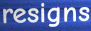
resigns